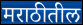
मराठीतील